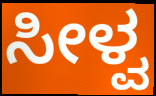
ಸೀಳ್ವ